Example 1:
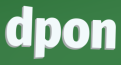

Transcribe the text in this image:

dpon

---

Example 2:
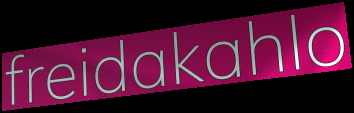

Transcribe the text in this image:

freidakahlo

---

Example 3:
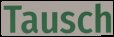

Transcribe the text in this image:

Tausch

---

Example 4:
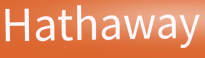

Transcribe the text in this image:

Hathaway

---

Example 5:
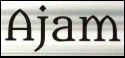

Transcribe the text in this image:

Ajam